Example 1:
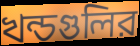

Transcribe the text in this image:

খন্ডগুলির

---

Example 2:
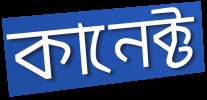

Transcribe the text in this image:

কানেক্ট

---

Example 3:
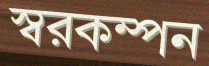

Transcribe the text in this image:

স্বরকম্পন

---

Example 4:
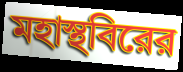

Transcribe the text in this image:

মহাস্থবিরের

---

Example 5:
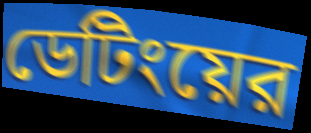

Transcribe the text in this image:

ডেটিংয়ের